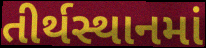
તીર્થસ્થાનમાં